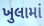
ખુલામાં